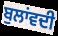
ਬੁਲਾਂਵਦੀ